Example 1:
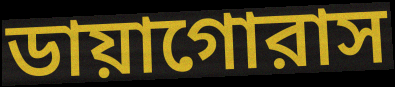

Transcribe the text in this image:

ডায়াগোরাস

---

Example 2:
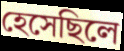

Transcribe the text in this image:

হেসেছিলে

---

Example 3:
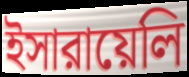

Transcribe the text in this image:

ইসারায়েলি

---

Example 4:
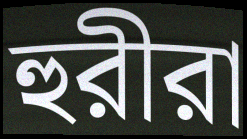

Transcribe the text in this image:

হুরীরা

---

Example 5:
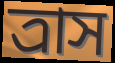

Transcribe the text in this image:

ত্রাস